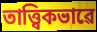
তাত্ত্বিকভাৱে